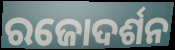
ରଜୋଦର୍ଶନ